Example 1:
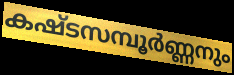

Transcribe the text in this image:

കഷ്ടസമ്പൂർണ്ണനും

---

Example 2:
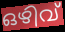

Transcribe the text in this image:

ഒഴിവ്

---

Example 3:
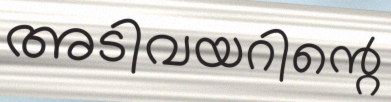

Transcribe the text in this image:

അടിവയറിന്റെ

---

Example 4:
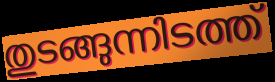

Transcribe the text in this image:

തുടങ്ങുന്നിടത്ത്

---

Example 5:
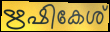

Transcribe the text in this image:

ഋഷികേശ്